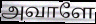
அவாளே